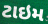
ટાઇમ